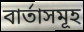
বাৰ্তাসমূহ